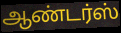
ஆண்டர்ஸ்